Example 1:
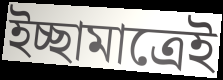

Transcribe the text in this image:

ইচ্ছামাত্রেই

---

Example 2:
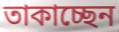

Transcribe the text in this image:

তাকাচ্ছেন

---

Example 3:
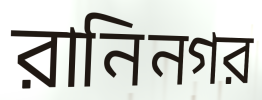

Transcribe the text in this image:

রানিনগর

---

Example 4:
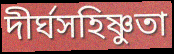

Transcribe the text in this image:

দীর্ঘসহিষ্ণুতা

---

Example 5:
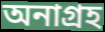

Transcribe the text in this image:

অনাগ্রহ